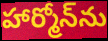
హార్మోన్‌ను